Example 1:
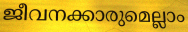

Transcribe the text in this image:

ജീവനക്കാരുമെല്ലാം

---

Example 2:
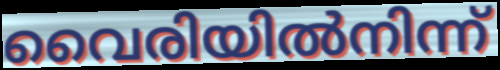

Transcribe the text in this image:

വൈരിയിൽനിന്ന്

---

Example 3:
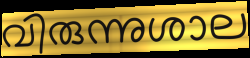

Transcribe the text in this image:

വിരുന്നുശാല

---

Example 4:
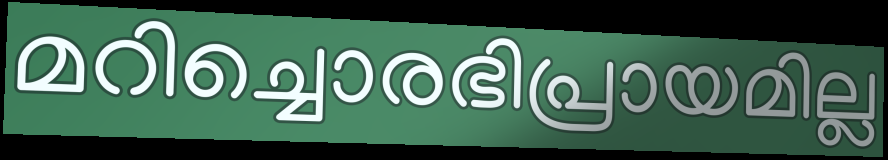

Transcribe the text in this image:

മറിച്ചൊരഭിപ്രായമില്ല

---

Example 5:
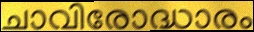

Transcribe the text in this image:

ചാവിരോദ്ധാരം